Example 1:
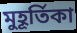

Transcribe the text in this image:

মুহূর্তিকা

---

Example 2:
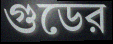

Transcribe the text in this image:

গুডের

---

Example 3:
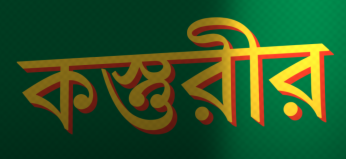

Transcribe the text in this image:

কস্তুরীর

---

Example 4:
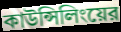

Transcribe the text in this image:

কাউন্সিলিংয়ের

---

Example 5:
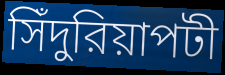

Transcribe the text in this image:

সিঁদুরিয়াপটী